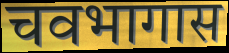
चवभागास